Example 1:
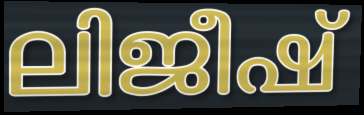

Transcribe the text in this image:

ലിജീഷ്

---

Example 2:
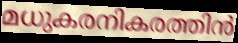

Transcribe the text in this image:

മധുകരനികരത്തിൻ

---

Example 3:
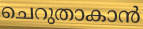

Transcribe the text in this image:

ചെറുതാകാൻ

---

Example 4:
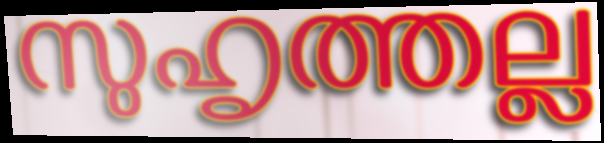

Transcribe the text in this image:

സുഹൃത്തല്ല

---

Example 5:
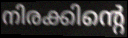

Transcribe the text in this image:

നിരക്കിന്റെ